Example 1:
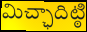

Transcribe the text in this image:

మిచ్ఛాదిట్ఠి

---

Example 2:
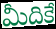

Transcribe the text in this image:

మీదికే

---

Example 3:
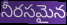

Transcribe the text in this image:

నీరసమైన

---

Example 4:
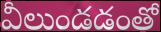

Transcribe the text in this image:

వీలుండడంతో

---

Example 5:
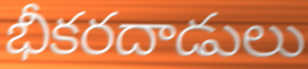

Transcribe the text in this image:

భీకరదాడులు